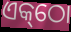
ଏକ୍‌ଠୋ